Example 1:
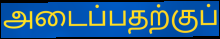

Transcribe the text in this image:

அடைப்பதற்குப்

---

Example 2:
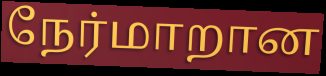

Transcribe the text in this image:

நேர்மாறான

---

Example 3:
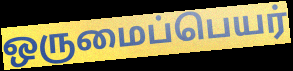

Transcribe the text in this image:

ஒருமைப்பெயர்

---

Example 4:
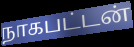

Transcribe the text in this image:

நாகபட்டன்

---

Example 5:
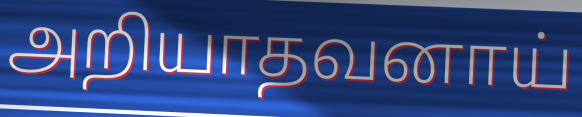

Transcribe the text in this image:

அறியாதவனாய்